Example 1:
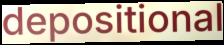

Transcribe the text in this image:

depositional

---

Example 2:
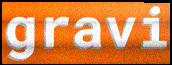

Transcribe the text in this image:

gravi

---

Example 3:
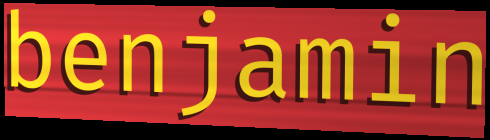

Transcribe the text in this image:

benjamin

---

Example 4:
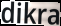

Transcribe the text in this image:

dikra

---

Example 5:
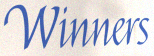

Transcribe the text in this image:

Winners